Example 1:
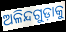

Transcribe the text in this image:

ଅଳିନ୍ଦଗୁଡ଼ାକୁ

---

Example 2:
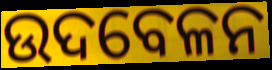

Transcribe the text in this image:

ଉଦବେଳନ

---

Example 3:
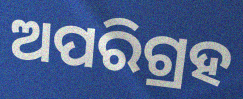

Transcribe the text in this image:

ଅପରିଗ୍ରହ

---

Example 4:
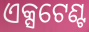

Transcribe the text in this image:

ଏକ୍ସଟେଣ୍ଟ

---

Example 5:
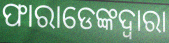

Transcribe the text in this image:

ଫାରାଡେଙ୍କଦ୍ୱାରା